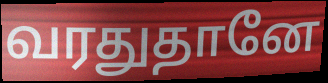
வரதுதானே